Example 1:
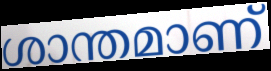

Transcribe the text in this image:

ശാന്തമാണ്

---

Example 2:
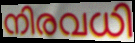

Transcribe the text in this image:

നിരവധി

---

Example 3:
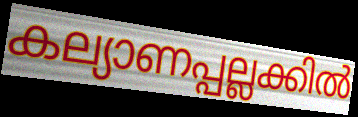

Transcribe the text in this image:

കല്യാണപ്പല്ലക്കിൽ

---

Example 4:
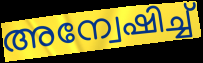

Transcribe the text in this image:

അന്വേഷിച്ച്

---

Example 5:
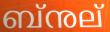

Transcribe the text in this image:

ബ്നുല്